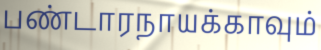
பண்டாரநாயக்காவும்